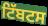
ਟਿੱਬਟਸ